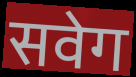
सवेग